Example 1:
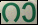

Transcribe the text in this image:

റാ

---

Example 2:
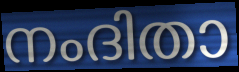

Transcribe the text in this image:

നംദിതാ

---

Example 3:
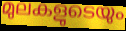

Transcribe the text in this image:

മുലകളുടെയും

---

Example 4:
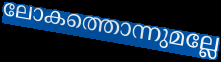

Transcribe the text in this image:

ലോകത്തൊന്നുമല്ലേ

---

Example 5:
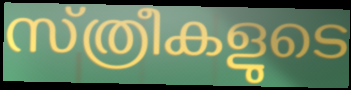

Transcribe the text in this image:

സ്‌ത്രീകളുടെ